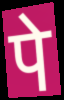
पे